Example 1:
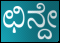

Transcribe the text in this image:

ಛಿನ್ದೇ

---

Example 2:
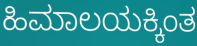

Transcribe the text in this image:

ಹಿಮಾಲಯಕ್ಕಿಂತ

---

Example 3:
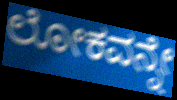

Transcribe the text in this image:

ಲೋಕವನ್ನೇ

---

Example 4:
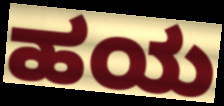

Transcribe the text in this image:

ಹಯ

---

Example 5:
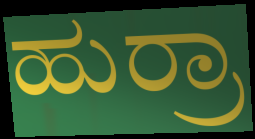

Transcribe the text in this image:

ಹುರ್ರಾ